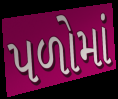
પળોમાં